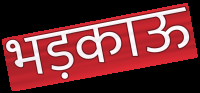
भड़काऊ